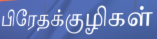
பிரேதக்குழிகள்